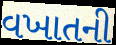
વખાતની